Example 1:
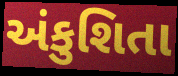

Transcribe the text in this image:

અંકુશિતા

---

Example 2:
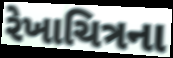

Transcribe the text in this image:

રેખાચિત્રના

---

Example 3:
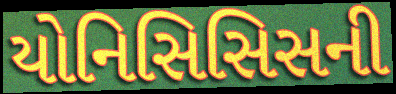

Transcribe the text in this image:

યોનિસિસિસની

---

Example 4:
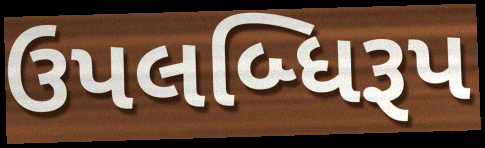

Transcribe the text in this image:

ઉપલબ્ધિરૂપ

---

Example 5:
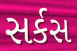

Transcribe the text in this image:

સર્કસ